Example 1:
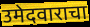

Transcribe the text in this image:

उमेदवाराचा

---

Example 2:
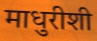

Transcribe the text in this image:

माधुरीशी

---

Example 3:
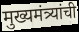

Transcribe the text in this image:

मुख्यमंत्र्यांची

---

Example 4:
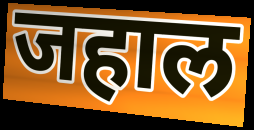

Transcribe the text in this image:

जहाल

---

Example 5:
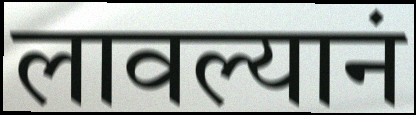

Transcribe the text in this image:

लावल्यानं